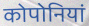
कोपोनियां